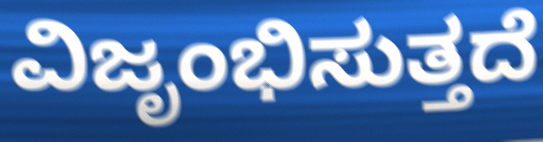
ವಿಜೃಂಭಿಸುತ್ತದೆ